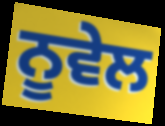
ਨੂਵੇਲ